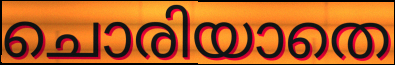
ചൊരിയാതെ